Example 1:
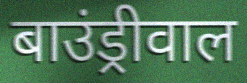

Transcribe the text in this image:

बाउंड्रीवाल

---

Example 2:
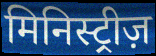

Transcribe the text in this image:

मिनिस्ट्रीज़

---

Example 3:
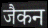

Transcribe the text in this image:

जैकन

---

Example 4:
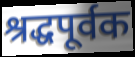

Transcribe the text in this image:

श्रद्धपूर्वक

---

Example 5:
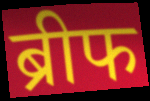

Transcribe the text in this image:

ब्रीफ